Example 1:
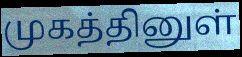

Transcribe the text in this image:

முகத்தினுள்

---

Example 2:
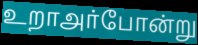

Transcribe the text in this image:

உறாஅர்போன்று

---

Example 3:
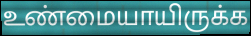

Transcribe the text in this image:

உண்மையாயிருக்க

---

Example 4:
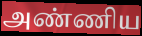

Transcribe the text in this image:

அண்ணிய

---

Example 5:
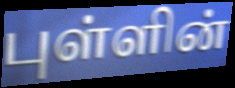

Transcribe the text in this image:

புள்ளின்